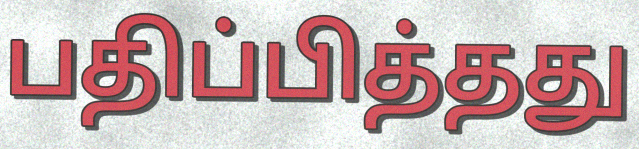
பதிப்பித்தது